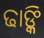
ଢାଙ୍କି